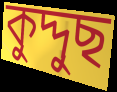
কুদ্দুছ